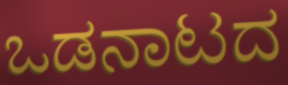
ಒಡನಾಟದ